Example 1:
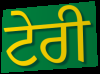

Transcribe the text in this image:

ਟੇਰੀ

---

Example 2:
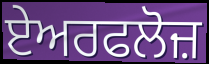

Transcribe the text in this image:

ਏਅਰਫਲੋਜ਼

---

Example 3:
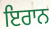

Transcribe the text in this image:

ਇਰਾਨ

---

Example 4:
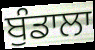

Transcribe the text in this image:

ਬੁੰਡਾਲਾ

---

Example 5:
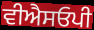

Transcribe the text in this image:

ਵੀਐਸਓਪੀ